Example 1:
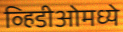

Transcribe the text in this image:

व्हिडीओमध्ये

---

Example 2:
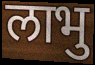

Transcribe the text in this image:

लाभु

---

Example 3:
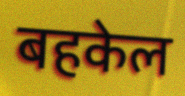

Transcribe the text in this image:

बहकेल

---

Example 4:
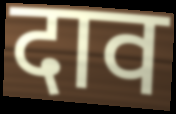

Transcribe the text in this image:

दाव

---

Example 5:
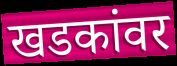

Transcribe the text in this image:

खडकांवर